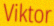
Viktor